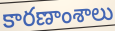
కారణాంశాలు